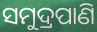
ସମୁଦ୍ରପାଣି